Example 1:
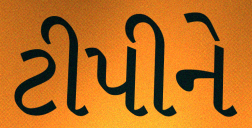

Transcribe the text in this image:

ટીપીને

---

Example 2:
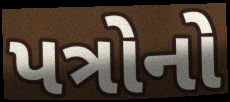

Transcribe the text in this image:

પત્રોનો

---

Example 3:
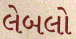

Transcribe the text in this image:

લેબલો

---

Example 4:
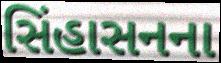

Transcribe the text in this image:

સિંહાસનના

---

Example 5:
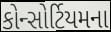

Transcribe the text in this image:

કોન્સોર્ટિયમના